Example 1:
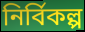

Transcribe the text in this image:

নির্বিকল্প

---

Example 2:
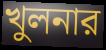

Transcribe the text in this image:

খুলনার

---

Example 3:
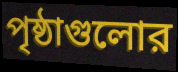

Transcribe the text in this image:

পৃষ্ঠাগুলোর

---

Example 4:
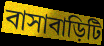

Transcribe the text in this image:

বাসাবাড়িটি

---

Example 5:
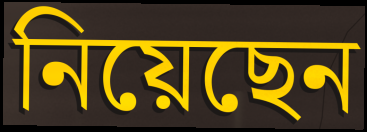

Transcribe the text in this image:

নিয়েছেন